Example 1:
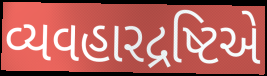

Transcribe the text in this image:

વ્યવહારદ્રષ્ટિએ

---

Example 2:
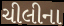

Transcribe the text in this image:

ચીલીના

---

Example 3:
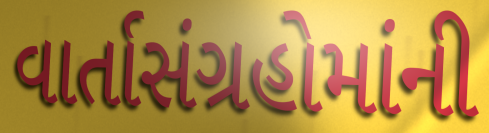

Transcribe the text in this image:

વાર્તાસંગ્રહોમાંની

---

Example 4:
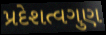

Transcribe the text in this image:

પ્રદેશત્વગુણ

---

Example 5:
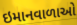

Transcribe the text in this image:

ઇમાનવાળાઓ